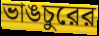
ভাঙচুরের